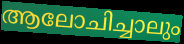
ആലോചിച്ചാലും